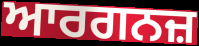
ਆਰਗਨਜ਼